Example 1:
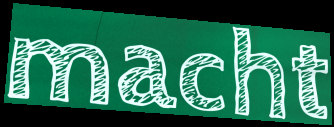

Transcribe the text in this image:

macht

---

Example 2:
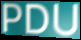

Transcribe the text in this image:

PDU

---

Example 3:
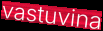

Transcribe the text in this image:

vastuvina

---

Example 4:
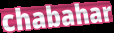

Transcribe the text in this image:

chabahar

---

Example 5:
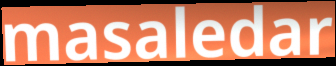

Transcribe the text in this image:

masaledar